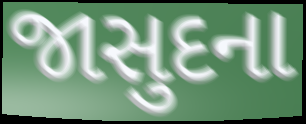
જાસુદના